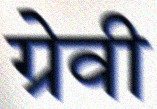
ग्रेवी